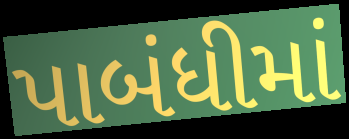
પાબંધીમાં